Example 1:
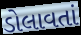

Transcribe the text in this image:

ડોલાવતાં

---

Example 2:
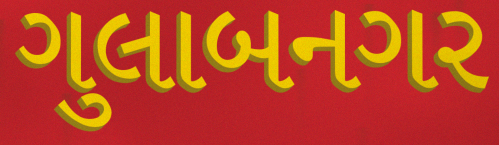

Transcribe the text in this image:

ગુલાબનગર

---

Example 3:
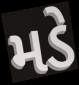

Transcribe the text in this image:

મડે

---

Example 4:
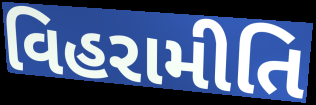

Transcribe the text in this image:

વિહરામીતિ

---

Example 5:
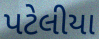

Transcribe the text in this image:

પટેલીયા